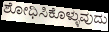
ಶೋಧಿಸಿಕೊಳ್ಳುವುದು